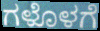
ಗಳೊಳಗೆ